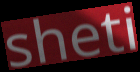
sheti